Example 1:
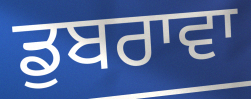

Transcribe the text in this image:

ਡੁਬਰਾਵਾ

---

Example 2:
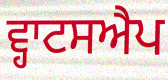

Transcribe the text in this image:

ਵ੍ਹਾਟਸਐਪ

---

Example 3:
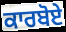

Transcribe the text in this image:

ਕਾਰਬੋਏ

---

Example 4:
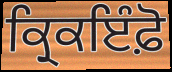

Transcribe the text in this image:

ਕ੍ਰਿਕਇੰਫ਼ੋ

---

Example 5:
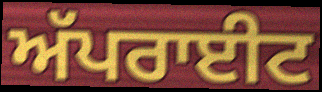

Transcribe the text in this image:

ਅੱਪਰਾਈਟ